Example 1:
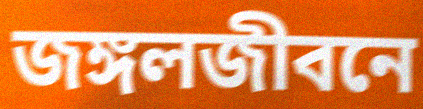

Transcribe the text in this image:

জঙ্গলজীবনে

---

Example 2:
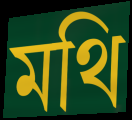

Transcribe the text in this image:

মথি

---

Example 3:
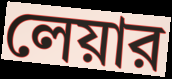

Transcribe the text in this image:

লেয়ার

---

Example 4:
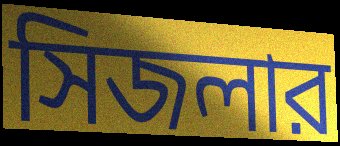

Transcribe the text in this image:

সিজলার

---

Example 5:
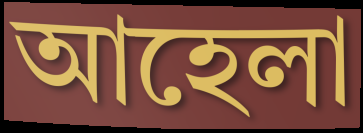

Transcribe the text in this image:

আহেলা